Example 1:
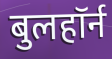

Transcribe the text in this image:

बुलहॉर्न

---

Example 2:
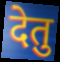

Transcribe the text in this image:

देतु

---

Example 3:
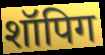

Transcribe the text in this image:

शॉपिग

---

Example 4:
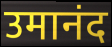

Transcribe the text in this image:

उमानंद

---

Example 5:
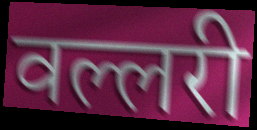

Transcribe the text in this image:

वल्लरी